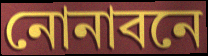
নোনাবনে